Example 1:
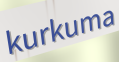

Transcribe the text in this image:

kurkuma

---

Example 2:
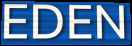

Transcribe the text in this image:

EDEN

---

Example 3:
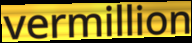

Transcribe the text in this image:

vermillion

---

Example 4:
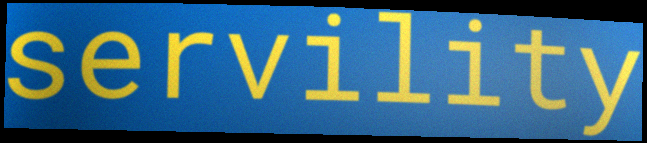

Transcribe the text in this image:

servility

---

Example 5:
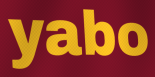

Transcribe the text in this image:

yabo